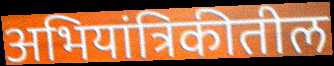
अभियांत्रिकीतील